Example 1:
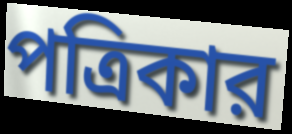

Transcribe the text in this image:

পত্রিকার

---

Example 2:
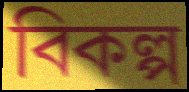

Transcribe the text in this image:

বিকল্প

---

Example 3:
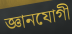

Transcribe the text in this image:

জ্ঞানযোগী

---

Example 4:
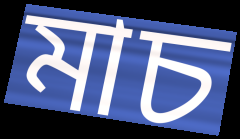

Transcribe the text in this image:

মাচ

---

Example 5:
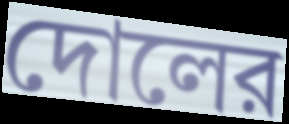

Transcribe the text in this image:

দোলের